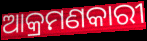
ଆକ୍ରମଣକାରୀ